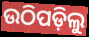
ଉଠିପଡ଼ିଲୁ